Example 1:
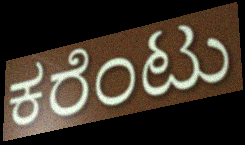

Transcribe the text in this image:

ಕರೆಂಟು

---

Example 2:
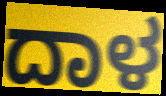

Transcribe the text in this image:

ದಾಳ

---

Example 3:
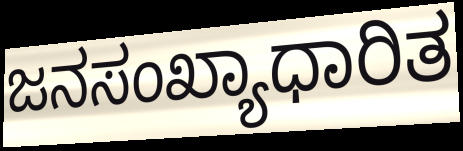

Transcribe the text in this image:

ಜನಸಂಖ್ಯಾಧಾರಿತ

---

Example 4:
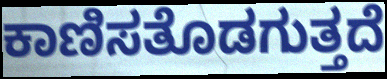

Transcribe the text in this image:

ಕಾಣಿಸತೊಡಗುತ್ತದೆ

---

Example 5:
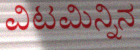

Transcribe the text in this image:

ವಿಟಮಿನ್ನಿನ